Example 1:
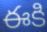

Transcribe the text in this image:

ఈకి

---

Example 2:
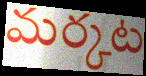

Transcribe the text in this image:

మర్కట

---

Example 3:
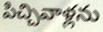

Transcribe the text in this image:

పిచ్చివాళ్లను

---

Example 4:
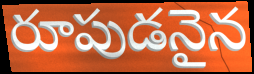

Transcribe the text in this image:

రూపుడనైన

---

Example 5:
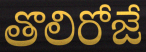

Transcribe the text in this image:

తొలిరోజే